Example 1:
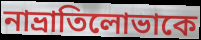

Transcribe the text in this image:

নাভ্রাতিলোভাকে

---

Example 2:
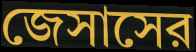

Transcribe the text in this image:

জেসাসের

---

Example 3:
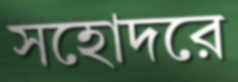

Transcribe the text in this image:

সহোদরে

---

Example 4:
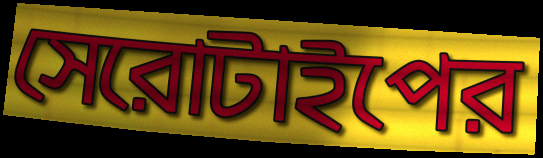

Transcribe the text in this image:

সেরোটাইপের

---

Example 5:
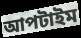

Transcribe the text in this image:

আপটাইম